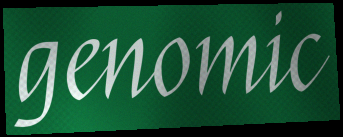
genomic